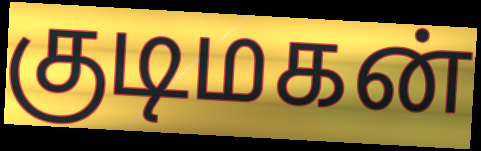
குடிமகன்